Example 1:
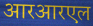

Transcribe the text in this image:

आरआरएल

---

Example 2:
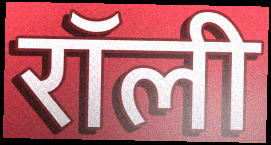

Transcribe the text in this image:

रॉली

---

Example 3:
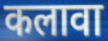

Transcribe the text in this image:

कलावा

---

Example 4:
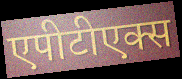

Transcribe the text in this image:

एपीटीएक्स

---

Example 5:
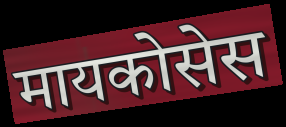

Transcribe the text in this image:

मायकोसेस